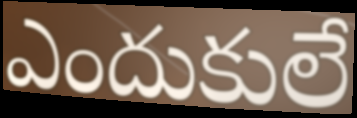
ఎందుకులే